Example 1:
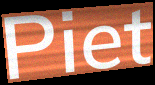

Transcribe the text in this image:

Piet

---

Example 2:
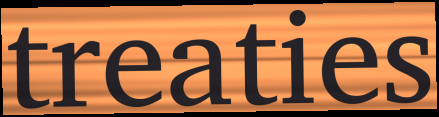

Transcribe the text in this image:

treaties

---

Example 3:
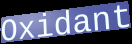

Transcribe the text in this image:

Oxidant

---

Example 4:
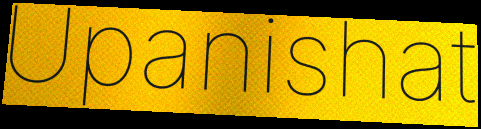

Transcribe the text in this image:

Upanishat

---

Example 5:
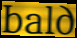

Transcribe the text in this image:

bald